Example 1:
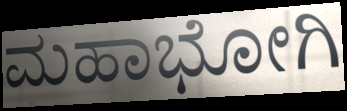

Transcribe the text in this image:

ಮಹಾಭೋಗಿ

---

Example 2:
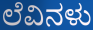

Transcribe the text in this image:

ಲೆವಿನಳು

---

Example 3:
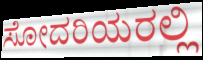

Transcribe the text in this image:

ಸೋದರಿಯರಲ್ಲಿ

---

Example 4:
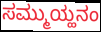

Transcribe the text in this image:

ಸಮ್ಮುಯ್ಹನಂ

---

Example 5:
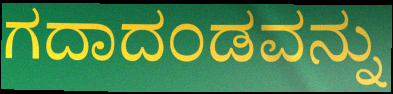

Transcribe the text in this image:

ಗದಾದಂಡವನ್ನು